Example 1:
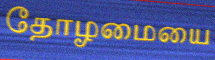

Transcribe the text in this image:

தோழமையை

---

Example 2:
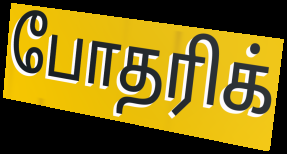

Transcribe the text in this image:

போதரிக்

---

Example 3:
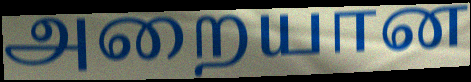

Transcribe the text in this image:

அறையான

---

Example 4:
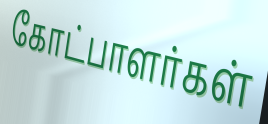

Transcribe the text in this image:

கோட்பாளர்கள்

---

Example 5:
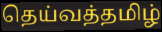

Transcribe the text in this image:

தெய்வத்தமிழ்